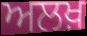
ਅਲਖ਼